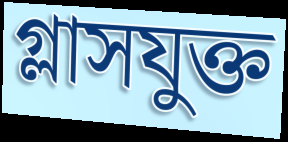
গ্লাসযুক্ত